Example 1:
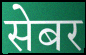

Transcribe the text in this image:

सेबर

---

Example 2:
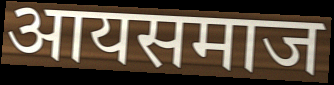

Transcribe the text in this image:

आयसमाज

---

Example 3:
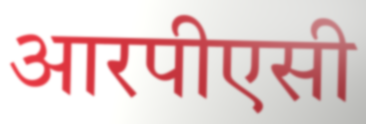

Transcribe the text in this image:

आरपीएसी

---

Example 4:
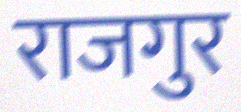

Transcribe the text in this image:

राजगुर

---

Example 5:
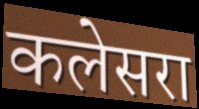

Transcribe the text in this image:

कलेसरा